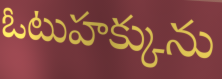
ఓటుహక్కును